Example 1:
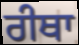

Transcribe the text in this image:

ਰੀਥਾ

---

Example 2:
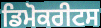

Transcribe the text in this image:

ਡਿਮੋਕਰੀਟਸ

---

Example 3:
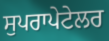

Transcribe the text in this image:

ਸੁਪਰਾਪੇਟੇਲਰ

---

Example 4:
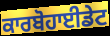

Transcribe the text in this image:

ਕਾਰਬੋਹਾਈਡੇਟ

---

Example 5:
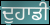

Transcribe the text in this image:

ਦੁਹਾਡੀ